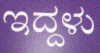
ಇದ್ದಳು